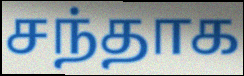
சந்தாக